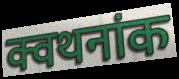
क्वथनांक